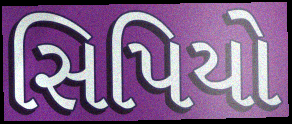
સિપિયો